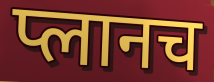
प्लानच